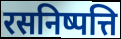
रसनिष्पत्ति